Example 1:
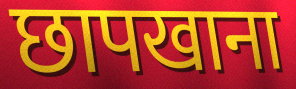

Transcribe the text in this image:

छापखाना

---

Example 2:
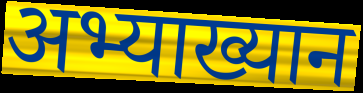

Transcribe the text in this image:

अभ्याख्यान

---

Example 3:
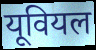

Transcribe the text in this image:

यूवियल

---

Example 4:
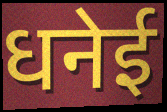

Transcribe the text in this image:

धनेई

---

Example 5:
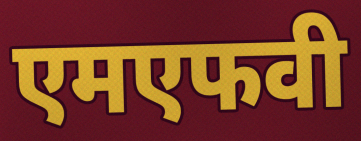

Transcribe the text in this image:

एमएफवी